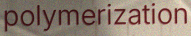
polymerization